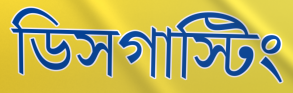
ডিসগাস্টিং